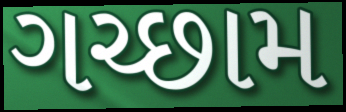
ગચ્છામ